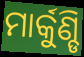
ମାର୍କୁଣ୍ଡି